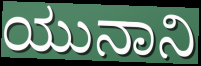
ಯುನಾನಿ